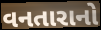
વનતારાનો